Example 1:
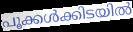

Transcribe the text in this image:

പൂക്കൾക്കിടയിൽ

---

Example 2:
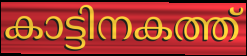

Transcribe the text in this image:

കാട്ടിനകത്ത്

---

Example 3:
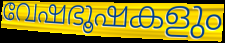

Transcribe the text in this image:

വേഷഭൂഷകളും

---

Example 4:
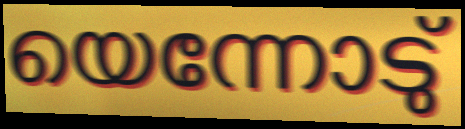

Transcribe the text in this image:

യെന്നോടു്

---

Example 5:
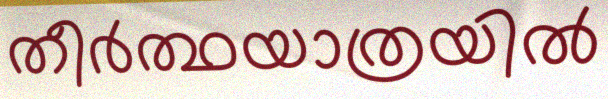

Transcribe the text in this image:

തീർത്ഥയാത്രയിൽ